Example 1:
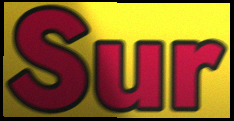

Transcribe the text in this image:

Sur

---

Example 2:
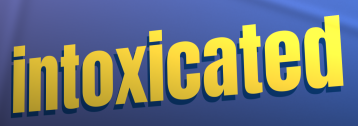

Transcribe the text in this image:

intoxicated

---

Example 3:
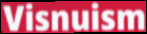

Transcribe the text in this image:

Visnuism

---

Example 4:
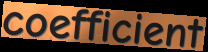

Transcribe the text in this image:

coefficient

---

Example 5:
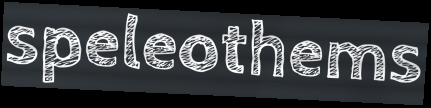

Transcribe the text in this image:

speleothems